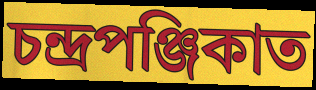
চন্দ্ৰপঞ্জিকাত